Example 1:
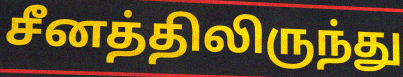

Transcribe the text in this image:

சீனத்திலிருந்து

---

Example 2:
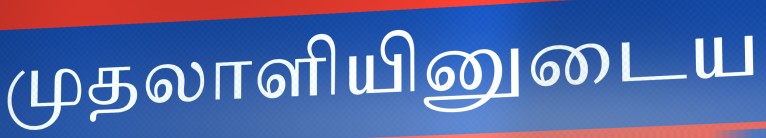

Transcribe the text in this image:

முதலாளியினுடைய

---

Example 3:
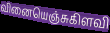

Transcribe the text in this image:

வினையெஞ்சுகிளவி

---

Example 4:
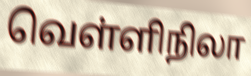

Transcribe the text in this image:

வெள்ளிநிலா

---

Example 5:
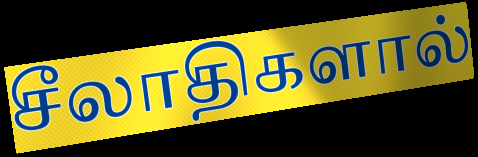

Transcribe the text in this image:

சீலாதிகளால்